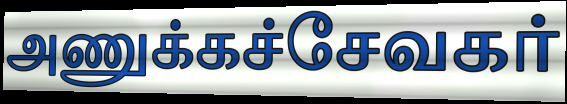
அணுக்கச்சேவகர்